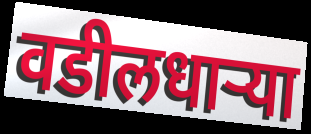
वडीलधार्‍या